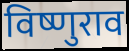
विष्णुराव